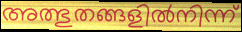
അത്ഭുതങ്ങളിൽനിന്ന്